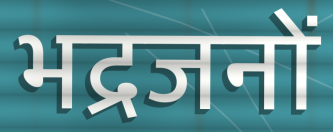
भद्रजनों